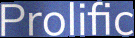
Prolific